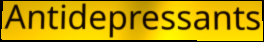
Antidepressants